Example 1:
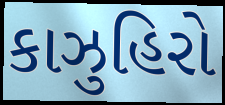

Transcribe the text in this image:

કાઝુહિરો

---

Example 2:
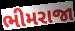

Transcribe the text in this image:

ભીમરાજા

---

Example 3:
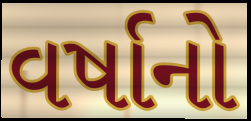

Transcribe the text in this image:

વર્ષાનો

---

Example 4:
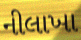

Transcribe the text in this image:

નીલાખા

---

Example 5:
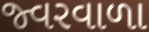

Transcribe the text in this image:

જ્વરવાળા